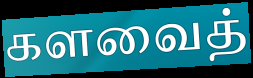
களவைத்